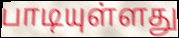
பாடியுள்ளது